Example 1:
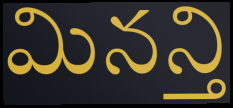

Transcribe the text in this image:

మినన్తి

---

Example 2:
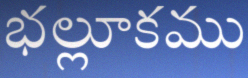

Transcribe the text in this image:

భల్లూకము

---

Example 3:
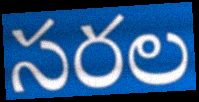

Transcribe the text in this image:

సరల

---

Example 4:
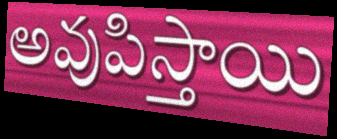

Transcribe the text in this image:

అవుపిస్తాయి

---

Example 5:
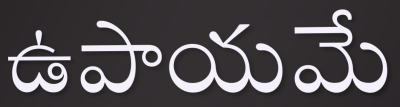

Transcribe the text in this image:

ఉపాయమే